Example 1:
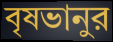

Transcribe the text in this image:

বৃষভানুর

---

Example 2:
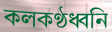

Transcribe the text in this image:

কলকণ্ঠধ্বনি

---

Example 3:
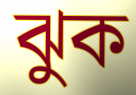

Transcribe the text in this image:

ঝুক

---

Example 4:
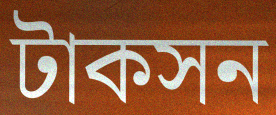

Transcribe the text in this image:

টাকসন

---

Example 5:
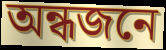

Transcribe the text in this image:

অন্ধজনে